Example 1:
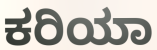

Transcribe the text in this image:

ಕರಿಯಾ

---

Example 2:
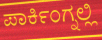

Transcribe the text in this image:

ಪಾರ್ಕಿಂಗ್ನಲ್ಲಿ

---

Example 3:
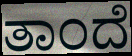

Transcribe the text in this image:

ತಾಂದೆ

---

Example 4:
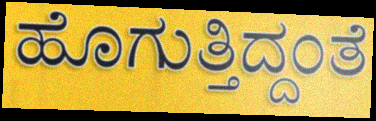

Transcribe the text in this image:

ಹೊಗುತ್ತಿದ್ದಂತೆ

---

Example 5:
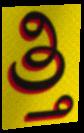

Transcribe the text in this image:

ತ್ತಿ